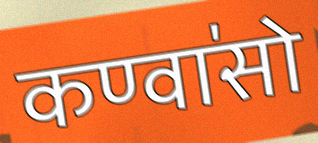
कण्वा॑सो